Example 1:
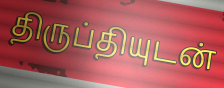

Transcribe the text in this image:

திருப்தியுடன்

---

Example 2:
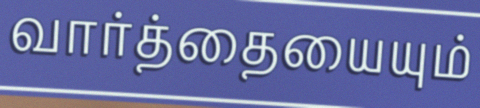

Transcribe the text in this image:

வார்த்தையையும்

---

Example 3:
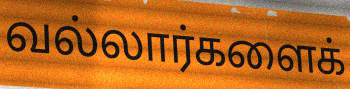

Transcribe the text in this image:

வல்லார்களைக்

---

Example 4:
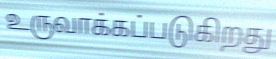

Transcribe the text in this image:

உருவாக்கப்படுகிறது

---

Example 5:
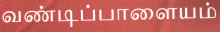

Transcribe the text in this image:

வண்டிப்பாளையம்